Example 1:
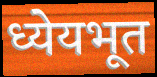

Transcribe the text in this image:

ध्येयभूत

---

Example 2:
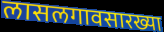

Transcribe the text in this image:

लासलगावसारख्या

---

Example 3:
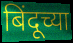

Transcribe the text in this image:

बिंदूच्या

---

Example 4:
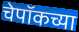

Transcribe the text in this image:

चेपॉकच्या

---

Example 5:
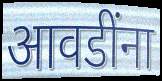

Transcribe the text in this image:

आवडींना